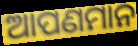
ଆପଣମାନ